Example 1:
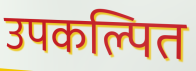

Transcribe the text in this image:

उपकल्पित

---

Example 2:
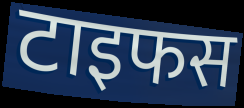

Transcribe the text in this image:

टाइफस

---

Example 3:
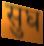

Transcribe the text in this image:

सुघ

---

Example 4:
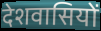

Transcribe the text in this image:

देशवासियों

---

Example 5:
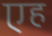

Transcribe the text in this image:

एह